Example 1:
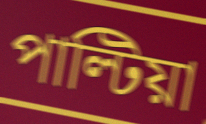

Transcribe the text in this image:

পাল্টিয়া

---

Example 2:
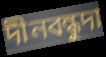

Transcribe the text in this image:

দীনবন্ধুদা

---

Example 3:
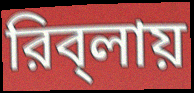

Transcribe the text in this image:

রিব্‌লায়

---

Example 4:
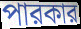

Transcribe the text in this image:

পারকার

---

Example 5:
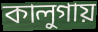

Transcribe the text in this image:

কালুগায়